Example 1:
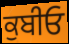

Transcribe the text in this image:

ਕੁਬੀਓ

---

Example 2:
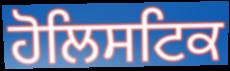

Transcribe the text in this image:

ਹੋਲਿਸਟਿਕ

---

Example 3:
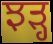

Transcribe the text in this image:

ਝੜ੍ਹ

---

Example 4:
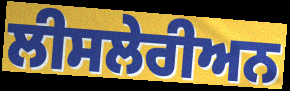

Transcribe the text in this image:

ਲੀਸਲੇਰੀਅਨ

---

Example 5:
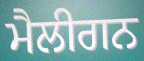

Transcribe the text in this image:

ਮੈਲੀਗਨ